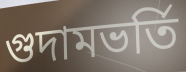
গুদামভর্তি